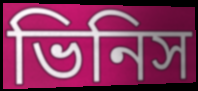
ভিনিস